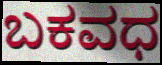
ಬಕವಧ